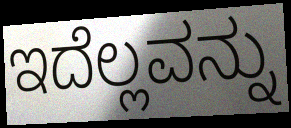
ಇದೆಲ್ಲವನ್ನು